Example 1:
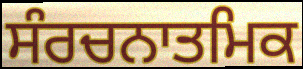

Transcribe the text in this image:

ਸੰਰਚਨਾਤਮਿਕ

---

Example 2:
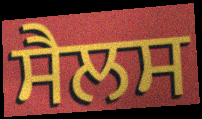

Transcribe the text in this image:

ਸੈਲਸ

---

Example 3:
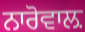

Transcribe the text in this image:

ਨਾਰੋਵਾਲ਼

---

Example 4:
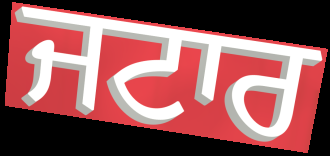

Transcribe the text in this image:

ਜਟਾਰ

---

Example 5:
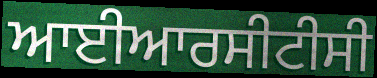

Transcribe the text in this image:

ਆਈਆਰਸੀਟੀਸੀ